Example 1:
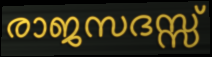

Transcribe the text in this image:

രാജസദസ്സ്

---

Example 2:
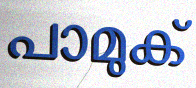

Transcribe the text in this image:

പാമുക്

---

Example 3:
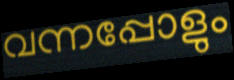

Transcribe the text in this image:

വന്നപ്പോളും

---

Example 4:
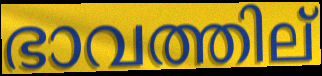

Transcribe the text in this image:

ഭാവത്തില്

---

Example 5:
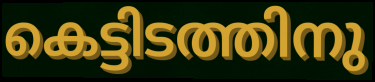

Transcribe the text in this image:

കെട്ടിടത്തിനു